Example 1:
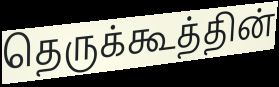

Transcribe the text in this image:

தெருக்கூத்தின்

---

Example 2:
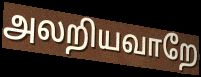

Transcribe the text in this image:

அலறியவாறே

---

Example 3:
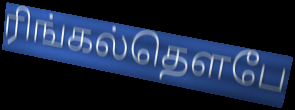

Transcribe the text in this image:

ரிங்கல்தௌபே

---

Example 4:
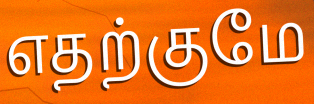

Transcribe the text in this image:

எதற்குமே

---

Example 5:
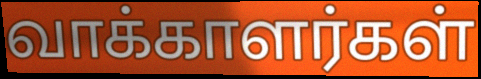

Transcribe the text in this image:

வாக்காளர்கள்